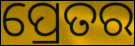
ପ୍ରେତର